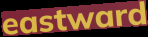
eastward